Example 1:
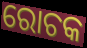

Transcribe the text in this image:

ରୋଚକ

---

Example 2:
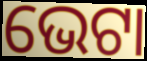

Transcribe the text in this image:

ଭେଟା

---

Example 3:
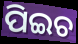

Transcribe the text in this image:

ପିଇଚ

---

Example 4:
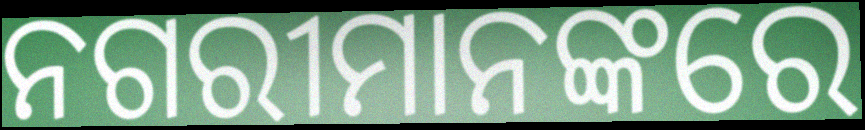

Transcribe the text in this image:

ନଗରୀମାନଙ୍କରେ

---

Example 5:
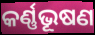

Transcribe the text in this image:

କର୍ଣ୍ଣଭୂଷଣ